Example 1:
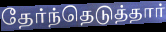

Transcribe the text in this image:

தேர்ந்தெடுத்தார்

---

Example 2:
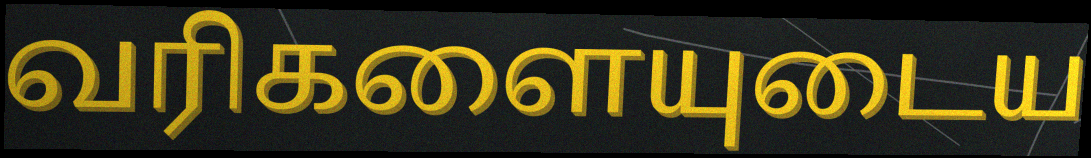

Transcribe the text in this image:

வரிகளையுடைய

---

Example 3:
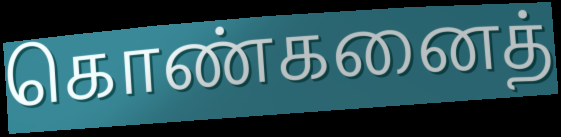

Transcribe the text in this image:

கொண்கனைத்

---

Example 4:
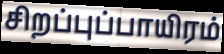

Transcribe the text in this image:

சிறப்புப்பாயிரம்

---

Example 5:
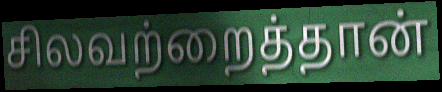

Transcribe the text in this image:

சிலவற்றைத்தான்